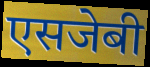
एसजेबी